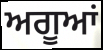
ਅਗੂਆਂ